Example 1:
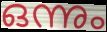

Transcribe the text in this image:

ഒന്നും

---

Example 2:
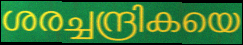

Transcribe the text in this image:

ശരച്ചന്ദ്രികയെ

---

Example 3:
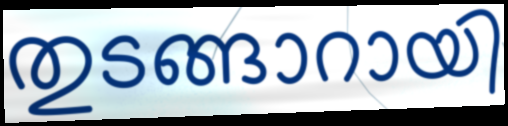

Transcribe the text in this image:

തുടങ്ങാറായി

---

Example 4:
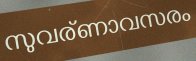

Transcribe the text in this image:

സുവര്ണാവസരം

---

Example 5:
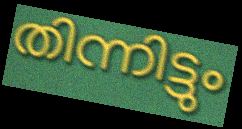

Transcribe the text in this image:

തിന്നിട്ടും